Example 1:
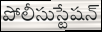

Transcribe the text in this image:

పోలీసుస్టేషన్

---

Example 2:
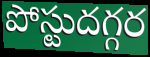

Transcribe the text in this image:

పోస్టుదగ్గర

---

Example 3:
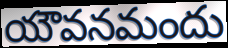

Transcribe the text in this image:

యౌవనమందు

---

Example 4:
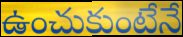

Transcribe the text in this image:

ఉంచుకుంటేనే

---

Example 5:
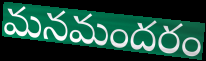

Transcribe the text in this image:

మనమందరం